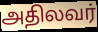
அதிலவர்